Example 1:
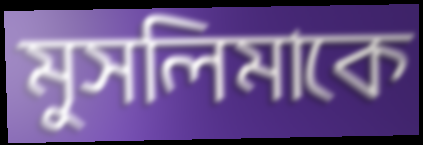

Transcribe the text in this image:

মুসলিমাকে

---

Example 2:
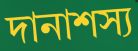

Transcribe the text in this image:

দানাশস্য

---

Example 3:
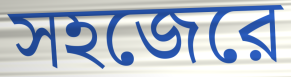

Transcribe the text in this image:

সহজেরে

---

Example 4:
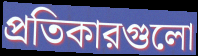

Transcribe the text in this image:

প্রতিকারগুলো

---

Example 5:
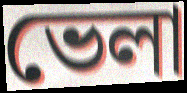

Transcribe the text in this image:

ভেলা